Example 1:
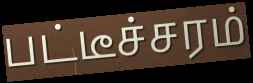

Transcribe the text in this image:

பட்டீச்சரம்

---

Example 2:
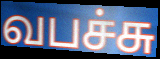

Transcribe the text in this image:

வபச்சு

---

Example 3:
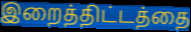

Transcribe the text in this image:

இறைத்திட்டத்தை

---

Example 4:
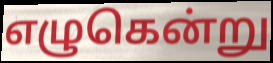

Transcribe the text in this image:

எழுகென்று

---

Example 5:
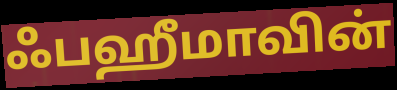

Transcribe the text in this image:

ஃபஹீமாவின்